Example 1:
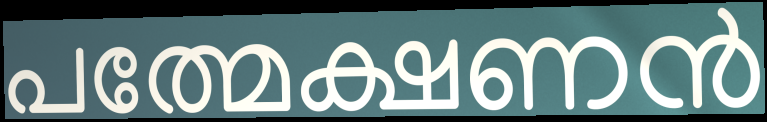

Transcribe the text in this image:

പത്മേക്ഷണൻ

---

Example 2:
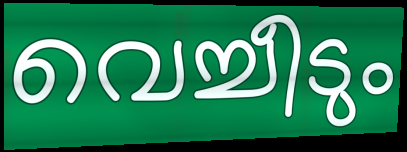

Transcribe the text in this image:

വെച്ചീടും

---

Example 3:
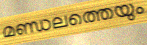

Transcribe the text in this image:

മണ്ഡലത്തെയും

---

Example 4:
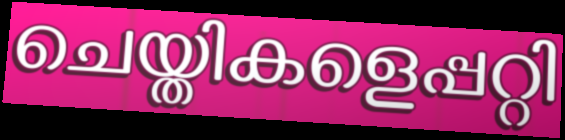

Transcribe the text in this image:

ചെയ്തികളെപ്പറ്റി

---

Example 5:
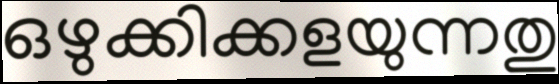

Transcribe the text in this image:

ഒഴുക്കിക്കളയുന്നതു